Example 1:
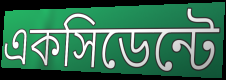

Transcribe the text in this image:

একসিডেন্টে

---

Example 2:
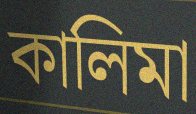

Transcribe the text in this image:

কালিমা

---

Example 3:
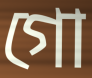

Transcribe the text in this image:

গো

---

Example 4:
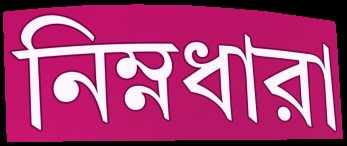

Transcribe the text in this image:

নিম্নধারা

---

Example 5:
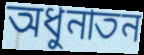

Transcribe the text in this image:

অধুনাতন